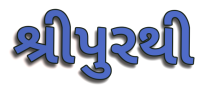
શ્રીપુરથી